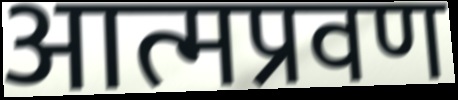
आत्मप्रवण